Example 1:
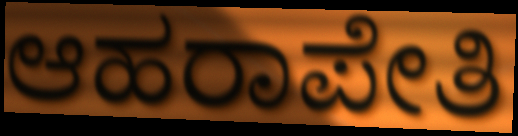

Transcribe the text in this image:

ಆಹರಾಪೇತಿ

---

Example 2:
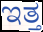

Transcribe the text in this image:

ಇತ್ತ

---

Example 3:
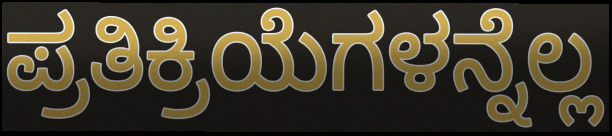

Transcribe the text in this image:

ಪ್ರತಿಕ್ರಿಯೆಗಳನ್ನೆಲ್ಲ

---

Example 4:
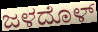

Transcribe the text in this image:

ಜಳದೊಳ್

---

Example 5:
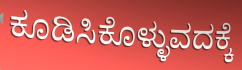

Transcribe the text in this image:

ಕೂಡಿಸಿಕೊಳ್ಳುವದಕ್ಕೆ